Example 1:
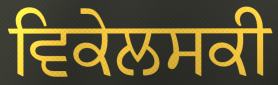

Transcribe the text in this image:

ਵਿਕੇਲਸਕੀ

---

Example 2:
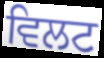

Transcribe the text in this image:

ਵਿਲਟ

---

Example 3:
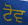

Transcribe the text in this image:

ਟੋਵ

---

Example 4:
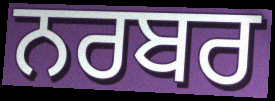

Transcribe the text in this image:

ਨਰਬਰ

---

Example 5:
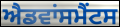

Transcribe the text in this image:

ਐਡਵਾਂਸਮੈਂਟਸ